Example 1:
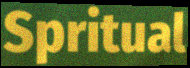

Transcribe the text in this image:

Spritual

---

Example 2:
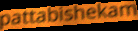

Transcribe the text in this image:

pattabishekam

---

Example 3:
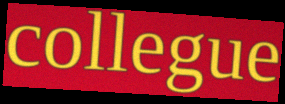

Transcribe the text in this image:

collegue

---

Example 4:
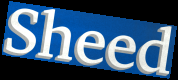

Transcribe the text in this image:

Sheed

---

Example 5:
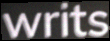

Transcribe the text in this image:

writs